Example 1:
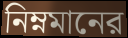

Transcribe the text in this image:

নিম্নমানের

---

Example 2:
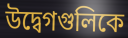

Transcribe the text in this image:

উদ্বেগগুলিকে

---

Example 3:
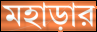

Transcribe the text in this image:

মহাড়ার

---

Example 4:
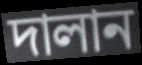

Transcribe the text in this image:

দালান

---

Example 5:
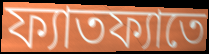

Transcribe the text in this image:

ফ্যাতফ্যাতে